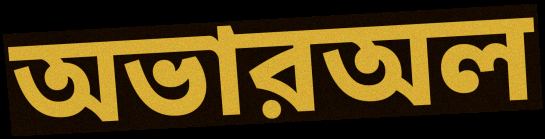
অভারঅল